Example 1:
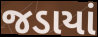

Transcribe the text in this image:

જડાયાં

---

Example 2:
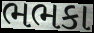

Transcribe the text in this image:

ભભકા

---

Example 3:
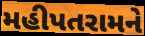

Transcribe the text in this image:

મહીપતરામને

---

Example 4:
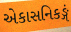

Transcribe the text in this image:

એકાસનિકઙ્ગં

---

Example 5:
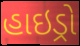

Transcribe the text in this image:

હાઇડ્રો